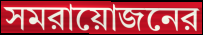
সমরায়োজনের